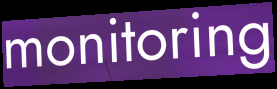
monitoring